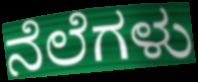
ನೆಲೆಗಳು